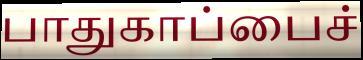
பாதுகாப்பைச்